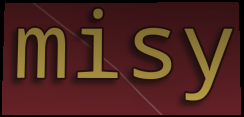
misy